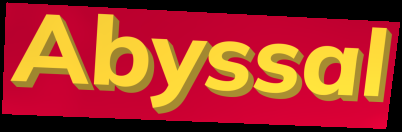
Abyssal